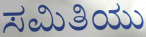
ಸಮಿತಿಯು